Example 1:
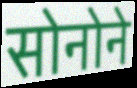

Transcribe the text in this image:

सोनोने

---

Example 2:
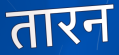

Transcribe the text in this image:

तारन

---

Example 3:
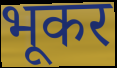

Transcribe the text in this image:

भूकर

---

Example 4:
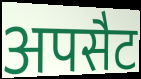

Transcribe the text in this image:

अपसैट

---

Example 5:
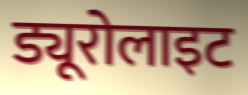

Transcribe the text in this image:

ड्यूरोलाइट